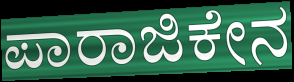
ಪಾರಾಜಿಕೇನ